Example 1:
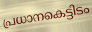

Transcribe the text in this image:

പ്രധാനകെട്ടിടം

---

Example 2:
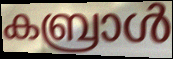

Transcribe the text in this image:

കബ്രാൾ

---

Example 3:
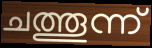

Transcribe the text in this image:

ചത്തൂന്ന്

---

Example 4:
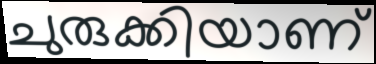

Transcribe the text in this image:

ചുരുക്കിയാണ്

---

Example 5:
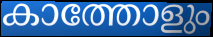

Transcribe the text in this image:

കാത്തോളും